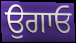
ਉਗਾਓ